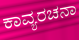
ಕಾವ್ಯರಚನಾ